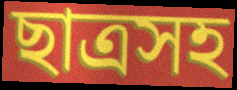
ছাত্রসহ